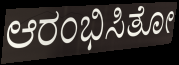
ಆರಂಭಿಸಿತೋ